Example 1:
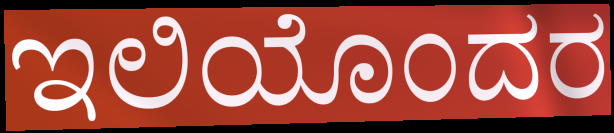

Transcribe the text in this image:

ಇಲಿಯೊಂದರ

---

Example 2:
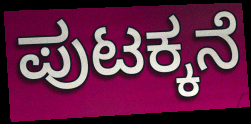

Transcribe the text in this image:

ಪುಟಕ್ಕನೆ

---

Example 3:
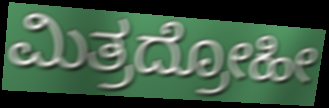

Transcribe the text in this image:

ಮಿತ್ರದ್ರೋಹೀ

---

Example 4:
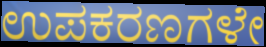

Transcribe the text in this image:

ಉಪಕರಣಗಳೇ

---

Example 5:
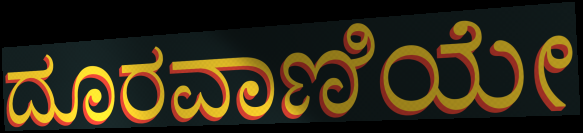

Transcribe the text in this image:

ದೂರವಾಣಿಯೇ